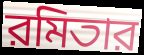
রমিতার